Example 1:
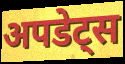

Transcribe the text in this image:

अपडेट्स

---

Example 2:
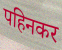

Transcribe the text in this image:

पहिनकर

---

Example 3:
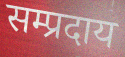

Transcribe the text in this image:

सम्प्रदाय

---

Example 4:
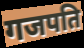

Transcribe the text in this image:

गजपति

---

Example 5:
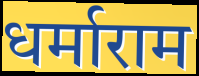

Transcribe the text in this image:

धर्माराम